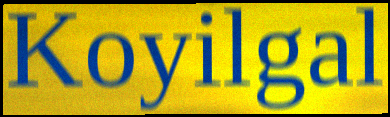
Koyilgal